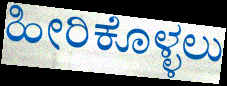
ಹೀರಿಕೊಳ್ಳಲು